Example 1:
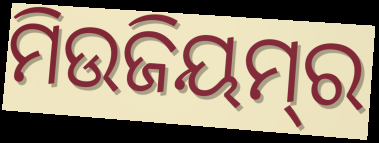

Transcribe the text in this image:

ମିଉଜିୟମ୍‌ର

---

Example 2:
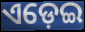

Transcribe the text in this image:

ଏଡ଼େଇ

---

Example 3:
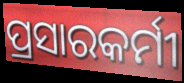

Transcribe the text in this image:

ପ୍ରସାରକର୍ମୀ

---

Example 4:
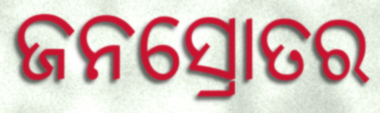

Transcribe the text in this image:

ଜନସ୍ରୋତର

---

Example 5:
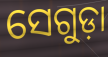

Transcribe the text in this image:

ସେଗୁଡ଼ା